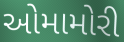
ઓમામોરી